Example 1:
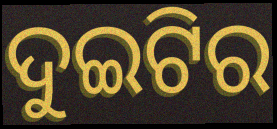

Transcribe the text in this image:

ଦୁଇଟିର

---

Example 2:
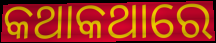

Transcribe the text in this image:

କଥାକଥାରେ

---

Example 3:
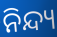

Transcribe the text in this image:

ନିନ୍ଦ୍ୟ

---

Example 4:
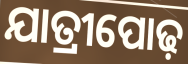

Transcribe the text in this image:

ଯାତ୍ରୀପୋଢ଼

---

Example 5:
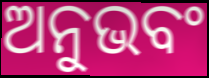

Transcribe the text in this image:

ଅନୁଭବଂ